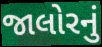
જાલોરનું